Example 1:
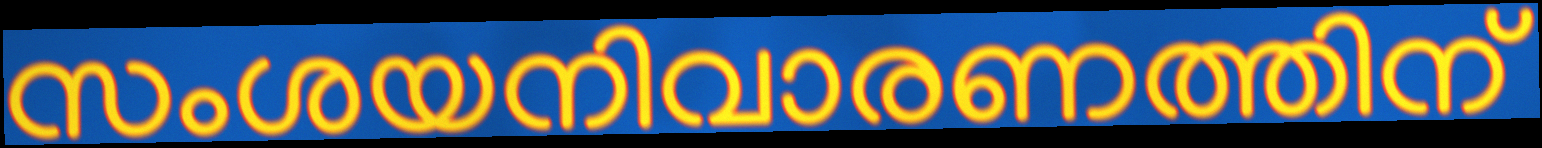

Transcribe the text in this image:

സംശയനിവാരണത്തിന്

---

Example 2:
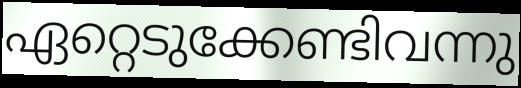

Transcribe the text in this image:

ഏറ്റെടുക്കേണ്ടിവന്നു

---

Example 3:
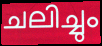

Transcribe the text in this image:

ചലിച്ചും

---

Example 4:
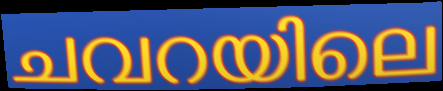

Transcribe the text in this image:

ചവറയിലെ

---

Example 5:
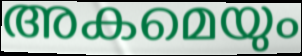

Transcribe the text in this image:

അകമെയും